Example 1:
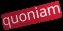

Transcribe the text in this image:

quoniam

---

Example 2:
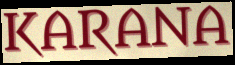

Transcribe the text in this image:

KARANA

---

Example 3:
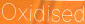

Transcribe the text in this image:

Oxidised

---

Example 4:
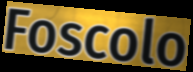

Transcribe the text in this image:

Foscolo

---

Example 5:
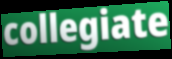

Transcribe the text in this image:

collegiate